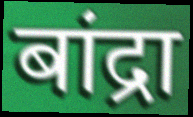
बांद्रा